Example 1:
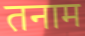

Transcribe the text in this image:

तनाम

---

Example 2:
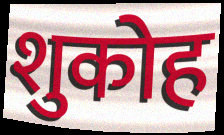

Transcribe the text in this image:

शुकोह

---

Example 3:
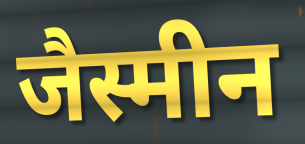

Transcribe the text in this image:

जैस्मीन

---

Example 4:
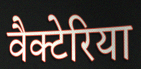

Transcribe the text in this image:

वैक्टेरिया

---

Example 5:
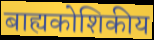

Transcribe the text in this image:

बाह्यकोशिकीय